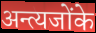
अन्त्यजोंके